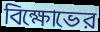
বিক্ষোভের